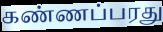
கண்ணப்பரது